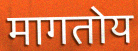
मागतोय